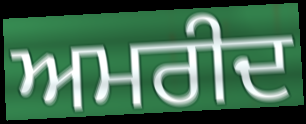
ਅਮਰੀਦ